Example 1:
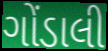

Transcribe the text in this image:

ગોંડાલી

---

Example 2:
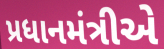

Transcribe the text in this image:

પ્રધાનમંત્રીએ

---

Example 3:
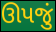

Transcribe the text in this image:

ઊપજું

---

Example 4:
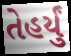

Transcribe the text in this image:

તેહર્યું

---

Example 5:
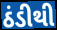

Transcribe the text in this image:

ઠંડીથી